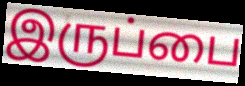
இருப்பை